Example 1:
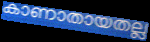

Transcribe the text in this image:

കാണാതായതല്ല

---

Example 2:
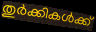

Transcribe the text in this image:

തുർക്കികൾക്ക്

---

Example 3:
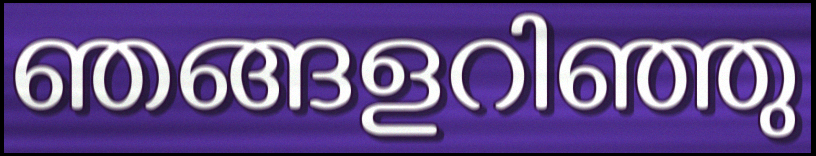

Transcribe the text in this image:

ഞങ്ങളറിഞ്ഞു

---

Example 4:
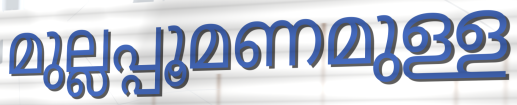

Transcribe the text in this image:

മുല്ലപ്പൂമണമുള്ള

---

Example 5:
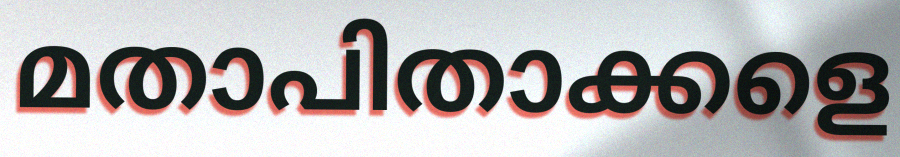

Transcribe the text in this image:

മതാപിതാക്കളെ